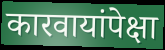
कारवायांपेक्षा